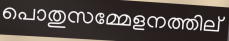
പൊതുസമ്മേളനത്തില്